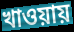
খাওয়ায়